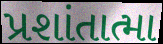
પ્રશાંતાત્મા